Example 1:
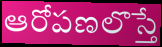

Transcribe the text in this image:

ఆరోపణలొస్తే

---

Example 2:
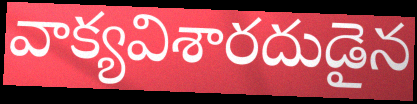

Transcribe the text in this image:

వాక్యవిశారదుడైన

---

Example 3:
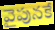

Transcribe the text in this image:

వైపునకే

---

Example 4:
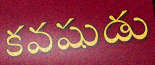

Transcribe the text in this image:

కవషుడు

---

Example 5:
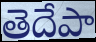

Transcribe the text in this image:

తెదేపా